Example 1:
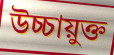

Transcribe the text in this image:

উচ্চায়ুক্ত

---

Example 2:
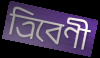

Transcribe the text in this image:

ত্ৰিবেণী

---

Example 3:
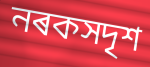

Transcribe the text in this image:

নৰকসদৃশ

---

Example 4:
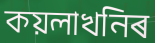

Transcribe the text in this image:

কয়লাখনিৰ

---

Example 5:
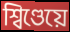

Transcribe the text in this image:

শ্বিণ্ডেয়ে